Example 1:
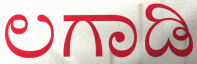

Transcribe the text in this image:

ಲಗಾಡಿ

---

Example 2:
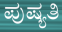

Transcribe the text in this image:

ಪುಷ್ಯತಿ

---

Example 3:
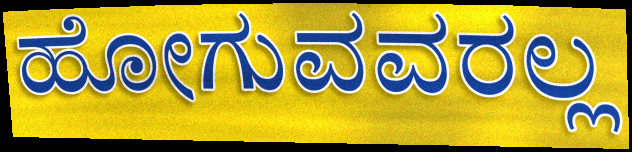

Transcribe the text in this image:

ಹೋಗುವವರಲ್ಲ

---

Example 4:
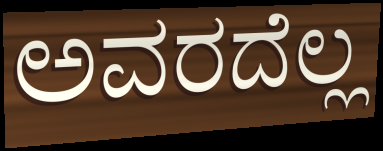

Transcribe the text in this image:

ಅವರದೆಲ್ಲ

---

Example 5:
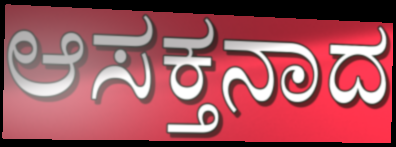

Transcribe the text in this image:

ಆಸಕ್ತನಾದ